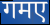
गमए